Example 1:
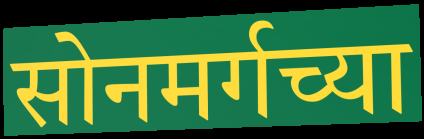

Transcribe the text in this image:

सोनमर्गच्या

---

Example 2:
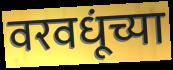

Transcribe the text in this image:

वरवधूंच्या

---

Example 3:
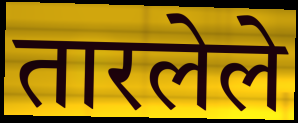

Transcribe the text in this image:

तारलेले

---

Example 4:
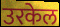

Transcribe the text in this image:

उरकेल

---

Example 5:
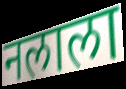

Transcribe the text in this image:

नलाला